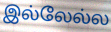
இல்லேல்ல